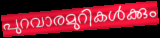
പുറവാരമുറികൾക്കും